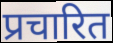
प्रचारित